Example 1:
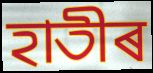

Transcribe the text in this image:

হাতীৰ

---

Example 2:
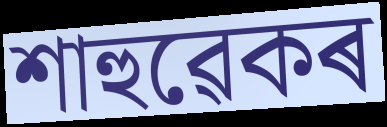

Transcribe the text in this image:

শাহুৱেকৰ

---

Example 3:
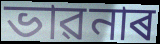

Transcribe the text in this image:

ভাৱনাৰ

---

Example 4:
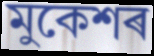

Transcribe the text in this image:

মুকেশৰ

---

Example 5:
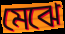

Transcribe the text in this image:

মেঝে